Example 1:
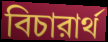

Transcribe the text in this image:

বিচারার্থ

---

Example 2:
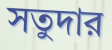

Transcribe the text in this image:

সতুদার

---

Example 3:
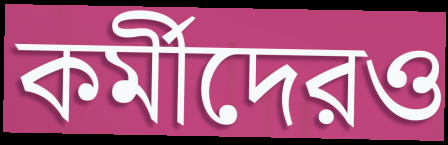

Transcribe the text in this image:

কর্মীদেরও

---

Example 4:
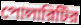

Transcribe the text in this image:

পোলারিটির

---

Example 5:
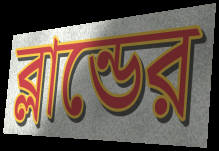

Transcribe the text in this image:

ব্লান্ডের